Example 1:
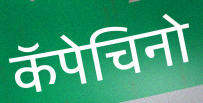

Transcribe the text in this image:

कॅपेचिनो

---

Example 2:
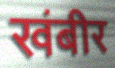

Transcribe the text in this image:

खंबीर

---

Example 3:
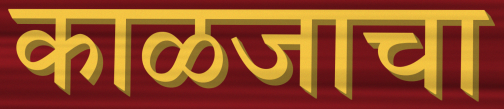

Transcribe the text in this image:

काळजाचा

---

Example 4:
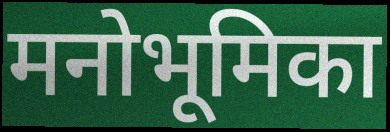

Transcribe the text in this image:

मनोभूमिका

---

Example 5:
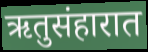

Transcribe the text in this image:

ऋतुसंहारात